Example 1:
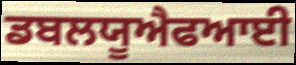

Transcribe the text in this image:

ਡਬਲਯੂਐਫਆਈ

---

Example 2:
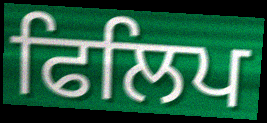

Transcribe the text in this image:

ਫਿਲਿਪ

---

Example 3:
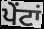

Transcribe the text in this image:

ਪੇਂਟਾਂ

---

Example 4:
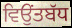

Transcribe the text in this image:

ਵਿਉਂਤਬੱਧ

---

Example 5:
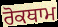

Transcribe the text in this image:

ਰੋਕਥਾਮ